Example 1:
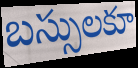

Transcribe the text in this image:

బస్సులకూ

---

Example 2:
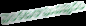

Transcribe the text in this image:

వెంకటరాఘవపురం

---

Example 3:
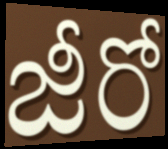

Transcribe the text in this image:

జీరో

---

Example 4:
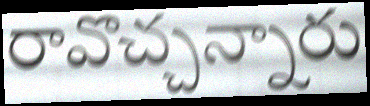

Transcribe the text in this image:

రావొచ్చన్నారు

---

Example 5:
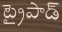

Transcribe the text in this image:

ట్రైపాడ్